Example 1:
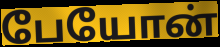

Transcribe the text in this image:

பேயோன்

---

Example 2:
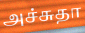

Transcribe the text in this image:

அச்சுதா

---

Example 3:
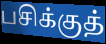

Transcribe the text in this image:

பசிக்குத்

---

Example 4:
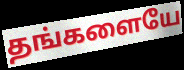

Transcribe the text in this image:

தங்களையே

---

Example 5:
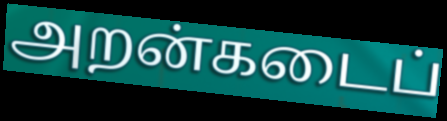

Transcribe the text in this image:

அறன்கடைப்